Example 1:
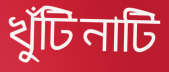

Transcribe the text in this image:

খুঁটিনাটি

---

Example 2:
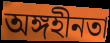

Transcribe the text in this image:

অঙ্গহীনতা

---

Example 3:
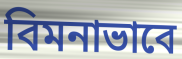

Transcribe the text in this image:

বিমনাভাবে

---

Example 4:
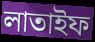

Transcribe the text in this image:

লাতাইফ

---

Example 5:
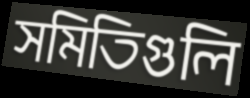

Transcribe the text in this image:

সমিতিগুলি